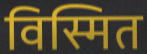
विस्मित